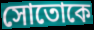
সোতোকে